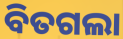
ବିତଗଲା